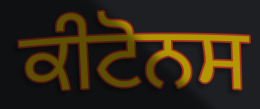
ਕੀਟੋਨਸ